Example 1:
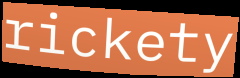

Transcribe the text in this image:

rickety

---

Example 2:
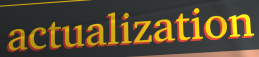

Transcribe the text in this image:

actualization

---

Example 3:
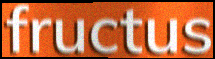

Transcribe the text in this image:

fructus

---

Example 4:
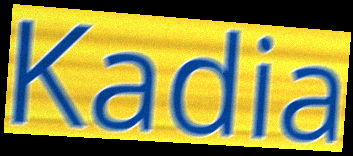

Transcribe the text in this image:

Kadia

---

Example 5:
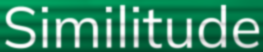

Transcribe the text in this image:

Similitude